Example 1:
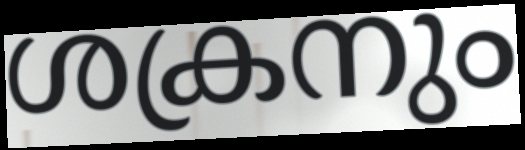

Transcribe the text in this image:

ശക്രനും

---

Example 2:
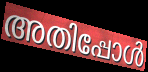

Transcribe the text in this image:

അതിപ്പോൾ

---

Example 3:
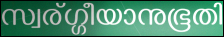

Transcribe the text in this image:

സ്വര്ഗ്ഗീയാനുഭൂതി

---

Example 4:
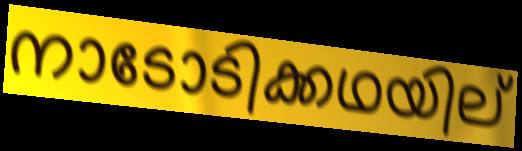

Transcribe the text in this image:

നാടോടിക്കഥയില്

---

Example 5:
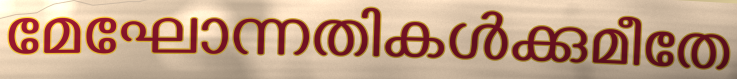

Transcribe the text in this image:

മേഘോന്നതികൾക്കുമീതേ